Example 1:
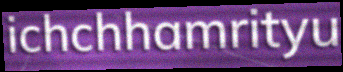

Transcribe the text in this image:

ichchhamrityu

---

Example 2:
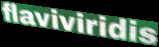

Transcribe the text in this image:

flaviviridis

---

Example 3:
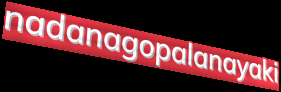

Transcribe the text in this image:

nadanagopalanayaki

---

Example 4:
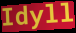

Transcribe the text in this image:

Idyll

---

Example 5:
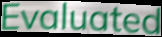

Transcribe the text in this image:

Evaluated